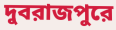
দুবরাজপুরে